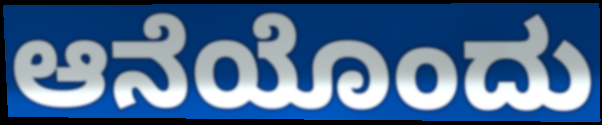
ಆನೆಯೊಂದು